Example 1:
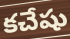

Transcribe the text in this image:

కచేషు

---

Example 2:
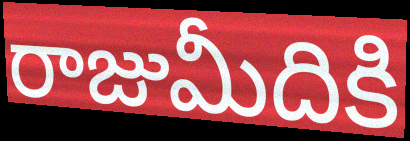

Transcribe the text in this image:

రాజుమీదికి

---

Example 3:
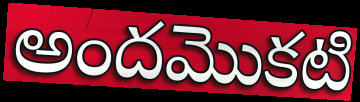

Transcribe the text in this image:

అందమొకటి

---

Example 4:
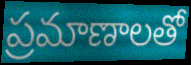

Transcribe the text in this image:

ప్రమాణాలతో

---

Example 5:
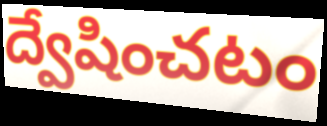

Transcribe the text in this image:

ద్వేషించటం